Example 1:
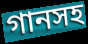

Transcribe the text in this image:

গানসহ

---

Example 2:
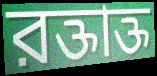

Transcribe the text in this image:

রক্তাক্ত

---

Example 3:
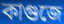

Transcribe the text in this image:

কাগুজে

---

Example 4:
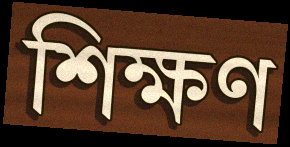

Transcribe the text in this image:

শিক্ষণ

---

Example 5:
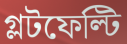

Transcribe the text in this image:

গ্লটফেল্টি